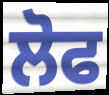
ਲੋਫ